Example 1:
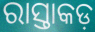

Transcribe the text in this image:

ରାସ୍ତାକଡ଼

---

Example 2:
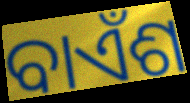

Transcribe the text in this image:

ବାଏଁଶ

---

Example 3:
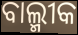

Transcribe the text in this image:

ବାଲ୍ମୀକ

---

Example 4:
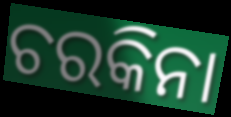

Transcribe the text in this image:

ଚରକିନା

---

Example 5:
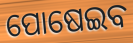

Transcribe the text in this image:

ପୋଷେଇବ